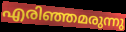
എരിഞ്ഞമരുന്നു